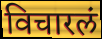
विचारलं